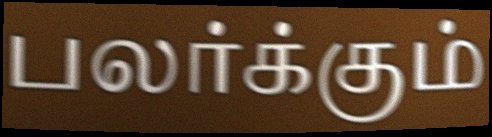
பலர்க்கும்